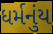
ધર્મનુંય